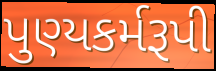
પુણ્યકર્મરૂપી